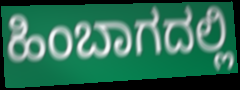
ಹಿಂಬಾಗದಲ್ಲಿ